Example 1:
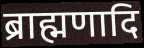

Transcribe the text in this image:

ब्राह्मणादि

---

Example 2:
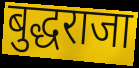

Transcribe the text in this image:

बुद्धराजा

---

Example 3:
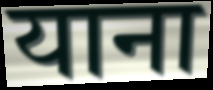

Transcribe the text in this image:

याना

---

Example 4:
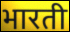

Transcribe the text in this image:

भारती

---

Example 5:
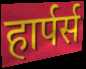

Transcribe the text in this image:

हार्पर्स